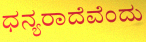
ಧನ್ಯರಾದೆವೆಂದು